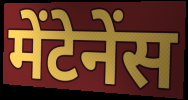
मेंटेनेंस